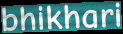
bhikhari